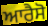
ਆਰੈਸੋ